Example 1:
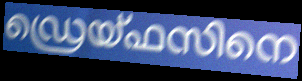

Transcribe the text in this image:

ഡ്രെയ്ഫസിനെ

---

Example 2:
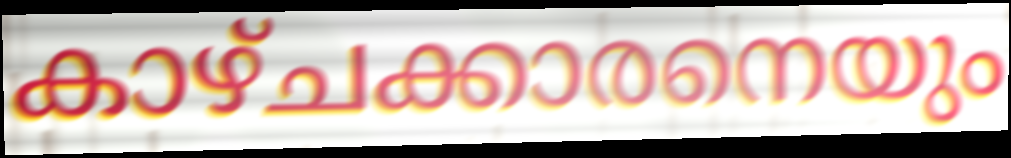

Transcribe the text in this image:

കാഴ്ചക്കാരനെയും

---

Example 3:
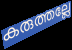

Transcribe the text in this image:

കരുത്തല്ലേ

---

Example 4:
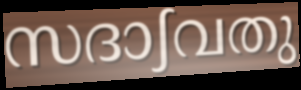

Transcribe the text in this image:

സദാഽവതു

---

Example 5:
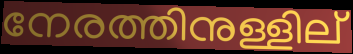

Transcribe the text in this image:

നേരത്തിനുള്ളില്